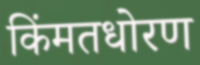
किंमतधोरण